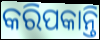
କରିପକାନ୍ତି